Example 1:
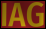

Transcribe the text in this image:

IAG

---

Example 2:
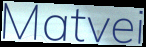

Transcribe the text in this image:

Matvei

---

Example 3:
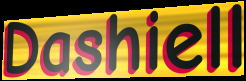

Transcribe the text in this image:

Dashiell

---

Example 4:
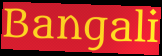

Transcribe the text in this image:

Bangali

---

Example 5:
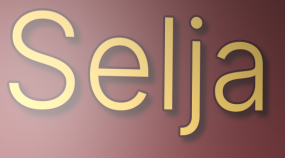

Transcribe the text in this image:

Selja